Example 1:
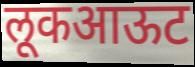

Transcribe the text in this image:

लूकआऊट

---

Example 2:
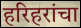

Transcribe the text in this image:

हरिहरांचा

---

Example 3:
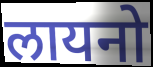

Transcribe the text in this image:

लायनो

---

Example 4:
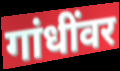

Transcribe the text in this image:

गांधींवर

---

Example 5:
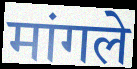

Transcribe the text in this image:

मांगले